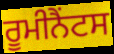
ਰੂਮੀਨੈਂਟਸ